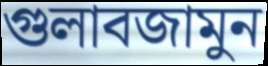
গুলাবজামুন